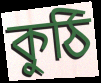
কুঠি